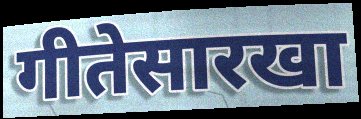
गीतेसारखा